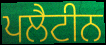
ਪਲੈਟੀਨ